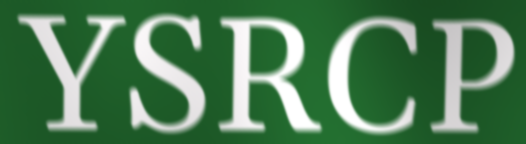
YSRCP